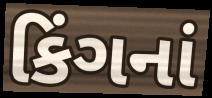
કિંગનાં